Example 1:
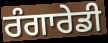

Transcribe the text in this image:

ਰੰਗਾਰੇਡੀ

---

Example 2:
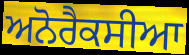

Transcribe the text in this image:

ਅਨੋਰੈਕਸੀਆ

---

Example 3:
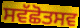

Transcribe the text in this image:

ਸਵੱਛੋਤਸਵ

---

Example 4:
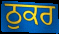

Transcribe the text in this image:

ਠੁਕਰ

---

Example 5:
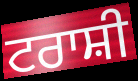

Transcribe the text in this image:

ਟਰਾਸ਼ੀ